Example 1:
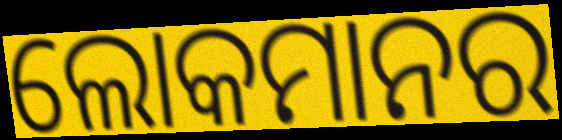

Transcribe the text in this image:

ଲୋକମାନର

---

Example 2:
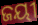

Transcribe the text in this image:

ଜୟୀ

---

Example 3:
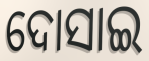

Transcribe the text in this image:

ଦୋସାଇ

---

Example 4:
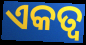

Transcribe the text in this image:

ଏକତ୍ୱ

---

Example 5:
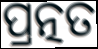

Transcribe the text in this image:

ପ୍ରତ୍ନତ